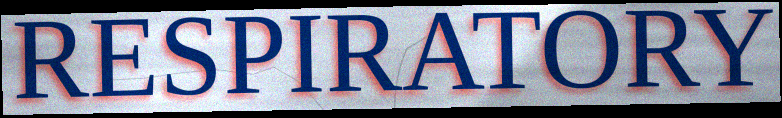
RESPIRATORY